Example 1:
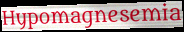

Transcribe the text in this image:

Hypomagnesemia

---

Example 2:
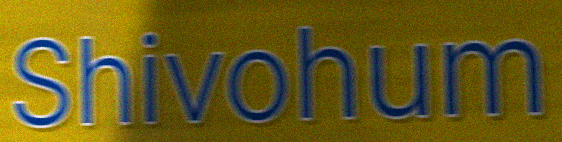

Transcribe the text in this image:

Shivohum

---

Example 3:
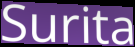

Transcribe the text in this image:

Surita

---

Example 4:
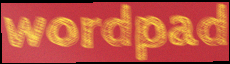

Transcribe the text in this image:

wordpad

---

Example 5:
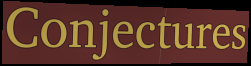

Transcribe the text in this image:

Conjectures